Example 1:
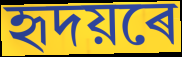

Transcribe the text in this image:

হৃদয়ৰে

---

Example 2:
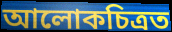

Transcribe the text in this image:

আলোকচিত্ৰত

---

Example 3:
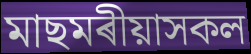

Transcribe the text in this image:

মাছমৰীয়াসকল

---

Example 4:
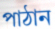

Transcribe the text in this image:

পাঠান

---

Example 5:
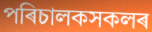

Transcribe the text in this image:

পৰিচালকসকলৰ